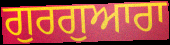
ਗੁਰਗੁਆਰਾ